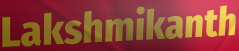
Lakshmikanth